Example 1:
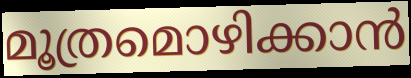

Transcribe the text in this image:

മൂത്രമൊഴിക്കാൻ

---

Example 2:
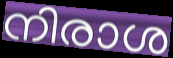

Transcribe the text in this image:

നിരാശ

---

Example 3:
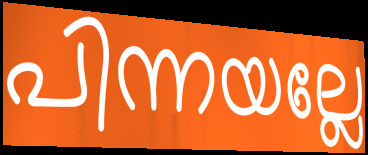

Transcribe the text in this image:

പിന്നയല്ലേ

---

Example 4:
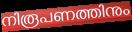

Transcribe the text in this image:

നിരൂപണത്തിനും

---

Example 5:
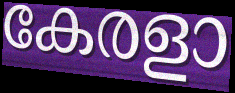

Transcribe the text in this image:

കേരളാ